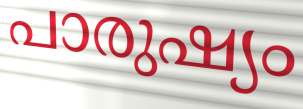
പാരുഷ്യം